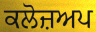
ਕਲੋਜ਼ਅਪ